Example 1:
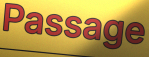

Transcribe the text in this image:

Passage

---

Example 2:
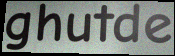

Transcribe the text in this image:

ghutde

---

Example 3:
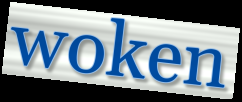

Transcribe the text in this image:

woken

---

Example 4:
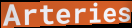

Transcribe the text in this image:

Arteries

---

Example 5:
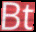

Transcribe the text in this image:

Bt